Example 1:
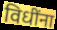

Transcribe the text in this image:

विधींना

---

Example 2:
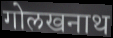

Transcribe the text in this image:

गोलखनाथ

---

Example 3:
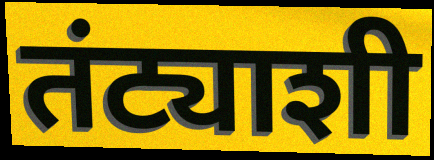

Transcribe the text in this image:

तंट्याशी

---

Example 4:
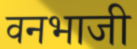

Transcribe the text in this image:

वनभाजी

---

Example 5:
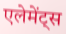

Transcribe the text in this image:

एलेमेंट्स